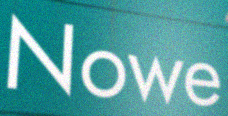
Nowe